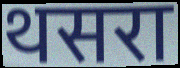
थसरा